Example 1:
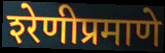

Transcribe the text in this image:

श्रेणीप्रमाणे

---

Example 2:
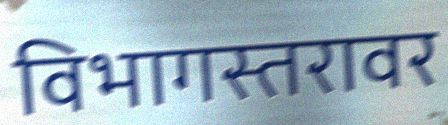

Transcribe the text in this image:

विभागस्तरावर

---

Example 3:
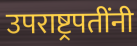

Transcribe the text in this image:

उपराष्ट्रपतींनी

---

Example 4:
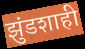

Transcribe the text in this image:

झुंडशाही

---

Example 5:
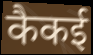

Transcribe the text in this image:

कैकई